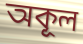
অকূল